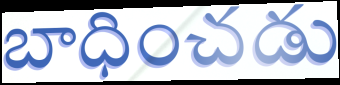
బాధించడు